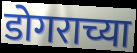
डोगराच्या